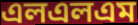
এলএলএম